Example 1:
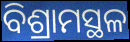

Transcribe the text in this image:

ବିଶ୍ରାମସ୍ଥଳ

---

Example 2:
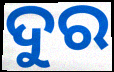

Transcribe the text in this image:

ଦୁର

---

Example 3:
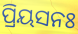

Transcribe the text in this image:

ପ୍ରିୟସନଃ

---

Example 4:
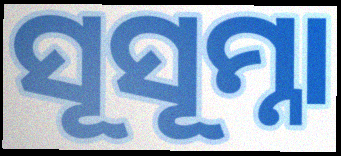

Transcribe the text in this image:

ସୂସୂମ୍ନା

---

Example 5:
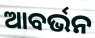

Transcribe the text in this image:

ଆବର୍ଭନ